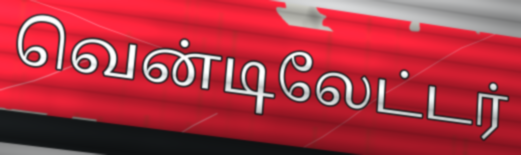
வென்டிலேட்டர்